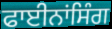
ਫਾਈਨਾਂਸਿੰਗ